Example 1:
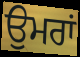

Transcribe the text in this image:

ਉੁਮਰਾਂ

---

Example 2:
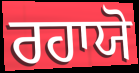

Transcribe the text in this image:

ਰਹਾਯੋ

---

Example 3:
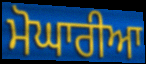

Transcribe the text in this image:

ਮੋਘਾਰੀਆ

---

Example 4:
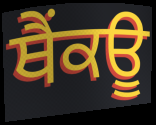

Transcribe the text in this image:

ਥੈਂਕਊ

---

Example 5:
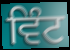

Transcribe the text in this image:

ਵਿੰਟ